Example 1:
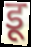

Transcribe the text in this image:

डू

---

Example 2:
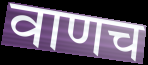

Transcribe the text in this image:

वाणच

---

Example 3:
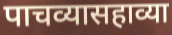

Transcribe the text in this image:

पाचव्यासहाव्या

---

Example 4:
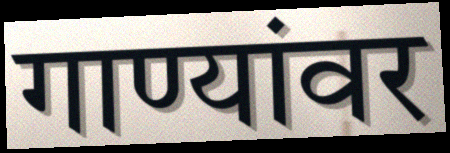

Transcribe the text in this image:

गाण्यांवर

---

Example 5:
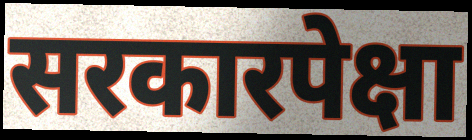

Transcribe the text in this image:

सरकारपेक्षा